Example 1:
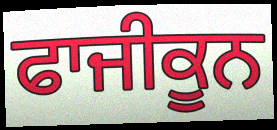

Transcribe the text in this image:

ਫਾਜੀਕੂਨ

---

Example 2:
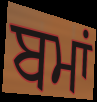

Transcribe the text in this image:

ਬਮਾਂ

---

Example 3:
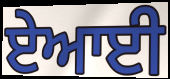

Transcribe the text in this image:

ਏਆਈ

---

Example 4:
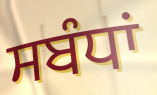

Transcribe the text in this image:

ਸਬੰਧਾਂ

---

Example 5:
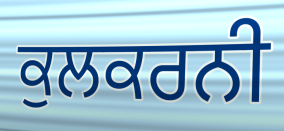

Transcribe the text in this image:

ਕੁਲਕਰਨੀ